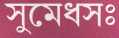
সুমেধসঃ